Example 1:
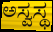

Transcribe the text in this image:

ಅಸ್ವಸ್ಥ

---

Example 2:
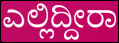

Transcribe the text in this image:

ಎಲ್ಲಿದ್ದೀರಾ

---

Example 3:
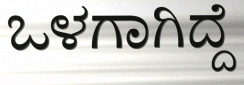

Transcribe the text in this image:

ಒಳಗಾಗಿದ್ದೆ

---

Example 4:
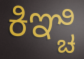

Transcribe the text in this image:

ಕಿಞ್ಚಿ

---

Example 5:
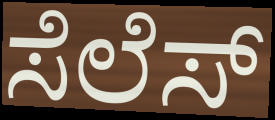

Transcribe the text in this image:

ಸೆಲೆಸ್